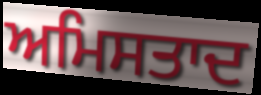
ਅਮਿਸਤਾਦ